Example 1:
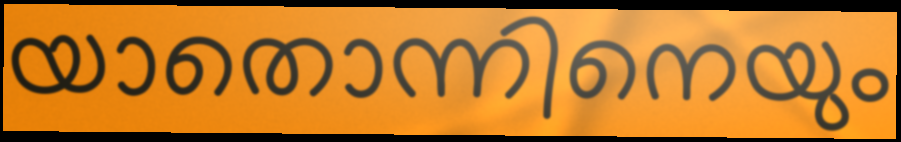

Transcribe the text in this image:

യാതൊന്നിനെയും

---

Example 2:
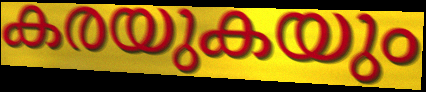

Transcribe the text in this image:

കരയുകയും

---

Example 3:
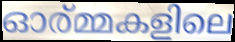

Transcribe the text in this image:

ഓര്മ്മകളിലെ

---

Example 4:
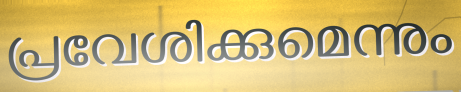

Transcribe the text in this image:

പ്രവേശിക്കുമെന്നും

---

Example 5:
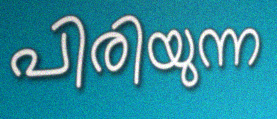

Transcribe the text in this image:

പിരിയുന്ന